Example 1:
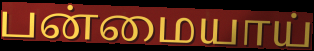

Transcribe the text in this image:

பன்மையாய்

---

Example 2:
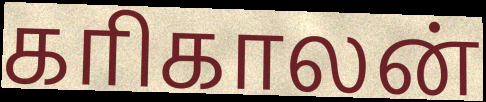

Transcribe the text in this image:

கரிகாலன்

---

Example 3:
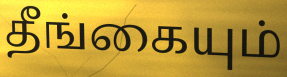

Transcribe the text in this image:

தீங்கையும்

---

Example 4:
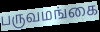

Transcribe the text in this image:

பருவமங்கை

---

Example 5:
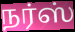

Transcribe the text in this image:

நர்ஸ்